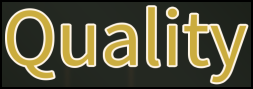
Quality